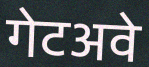
गेटअवे